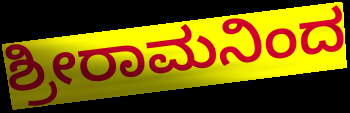
ಶ್ರೀರಾಮನಿಂದ